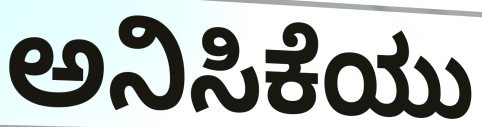
ಅನಿಸಿಕೆಯು